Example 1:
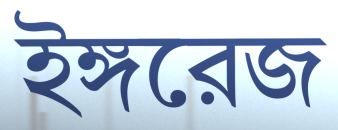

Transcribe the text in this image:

ইঙ্গরেজ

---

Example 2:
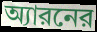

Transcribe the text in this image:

অ্যারনের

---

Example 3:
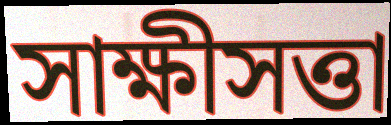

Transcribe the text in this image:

সাক্ষীসত্তা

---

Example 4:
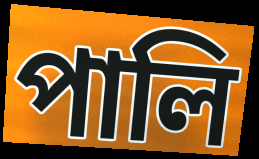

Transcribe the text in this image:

পালি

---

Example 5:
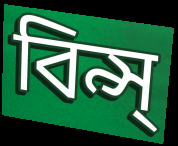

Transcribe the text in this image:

বিন্স্